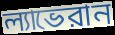
ল্যাভেরান